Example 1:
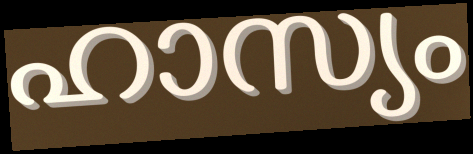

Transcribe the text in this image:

ഹാസ്യം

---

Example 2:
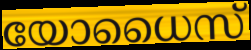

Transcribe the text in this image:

യോധൈസ്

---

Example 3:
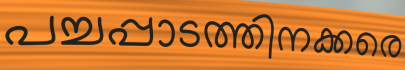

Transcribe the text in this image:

പച്ചപ്പാടത്തിനക്കരെ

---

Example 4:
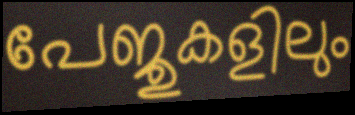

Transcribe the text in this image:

പേജുകളിലും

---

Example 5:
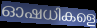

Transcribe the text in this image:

ഓഷധികളെ